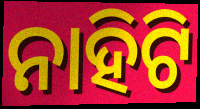
ନାହିଟି